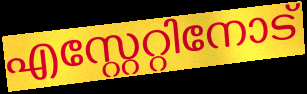
എസ്റ്റേറ്റിനോട്